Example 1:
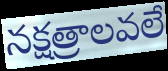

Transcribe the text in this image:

నక్షత్రాలవలే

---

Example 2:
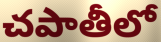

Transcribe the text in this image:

చపాతీలో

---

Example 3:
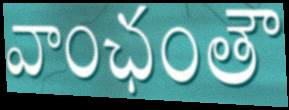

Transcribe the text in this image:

వాంఛంతౌ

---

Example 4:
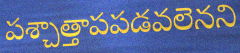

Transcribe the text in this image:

పశ్చాత్తాపపడవలెనని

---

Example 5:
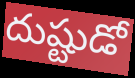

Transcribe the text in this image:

దుష్టుడో